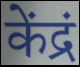
केंद्रं